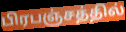
பிரபஞ்சத்தில்